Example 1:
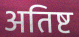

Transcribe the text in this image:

अतिष्ट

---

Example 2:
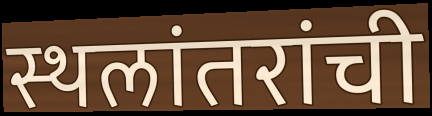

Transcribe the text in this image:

स्थलांतरांची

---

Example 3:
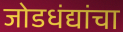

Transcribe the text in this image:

जोडधंद्यांचा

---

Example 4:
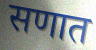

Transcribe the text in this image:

सणात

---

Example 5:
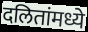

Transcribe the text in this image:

दलितांमध्ये